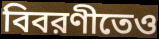
বিবরণীতেও